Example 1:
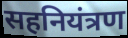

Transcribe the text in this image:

सहनियंत्रण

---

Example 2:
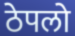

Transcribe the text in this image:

ठेपलो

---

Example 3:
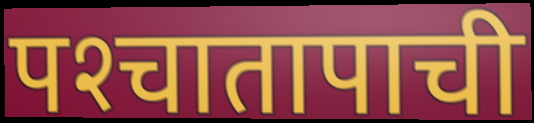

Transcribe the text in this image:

पश्चातापाची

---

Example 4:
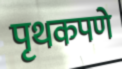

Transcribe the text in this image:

पृथकपणे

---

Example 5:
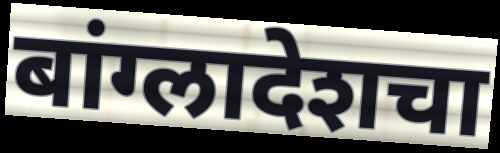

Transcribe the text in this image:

बांग्लादेशचा